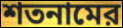
শতনামের